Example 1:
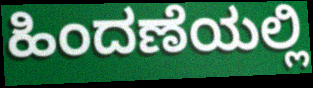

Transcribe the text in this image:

ಹಿಂದಣೆಯಲ್ಲಿ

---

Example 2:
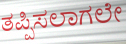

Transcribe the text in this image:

ತಪ್ಪಿಸಲಾಗಲೇ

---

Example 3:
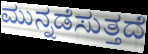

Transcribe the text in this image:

ಮುನ್ನಡೆಸುತ್ತದೆ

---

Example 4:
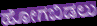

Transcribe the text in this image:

ಹೋಗಬಿಡಲು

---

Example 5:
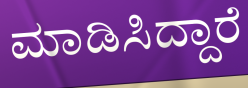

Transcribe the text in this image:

ಮಾಡಿಸಿದ್ದಾರೆ